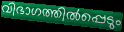
വിഭാഗത്തിൽപ്പെടും